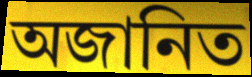
অজানিত